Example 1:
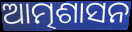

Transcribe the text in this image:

ଆତ୍ମଶାସନ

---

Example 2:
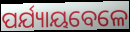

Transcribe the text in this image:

ପର୍ଯ୍ୟାୟବେଳେ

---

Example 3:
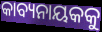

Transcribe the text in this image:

କାବ୍ୟନାୟକକୁ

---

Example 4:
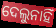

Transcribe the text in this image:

ଦେଲୁନାହିଁ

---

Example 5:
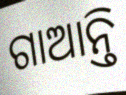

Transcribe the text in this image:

ଗାଆନ୍ତି